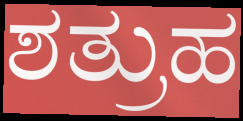
ಶತ್ರುಹ